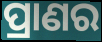
ପ୍ରାଣର